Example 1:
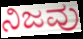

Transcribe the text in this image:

ನಿಜವು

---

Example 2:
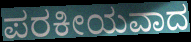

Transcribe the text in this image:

ಪರಕೀಯವಾದ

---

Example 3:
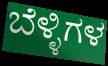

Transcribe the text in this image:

ಬೆಳ್ಳಿಗಳ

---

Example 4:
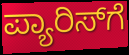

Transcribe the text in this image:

ಪ್ಯಾರಿಸ್‍ಗೆ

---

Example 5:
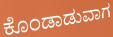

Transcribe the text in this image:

ಕೊಂಡಾಡುವಾಗ